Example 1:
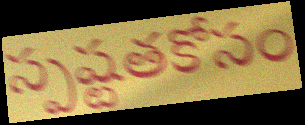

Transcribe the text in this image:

స్పష్టతకోసం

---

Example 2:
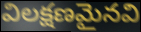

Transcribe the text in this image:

విలక్షణమైనవి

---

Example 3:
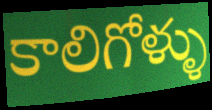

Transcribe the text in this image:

కాలిగోళ్ళు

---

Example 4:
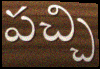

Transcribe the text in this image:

పచ్చి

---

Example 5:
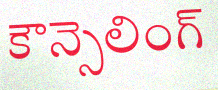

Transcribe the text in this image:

కౌన్సెలింగ్